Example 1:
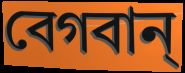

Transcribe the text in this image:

বেগবান্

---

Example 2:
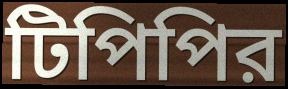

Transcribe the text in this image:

টিপিপির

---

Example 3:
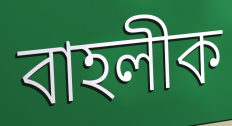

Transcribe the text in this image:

বাহলীক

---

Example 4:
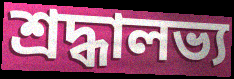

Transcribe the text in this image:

শ্রদ্ধালভ্য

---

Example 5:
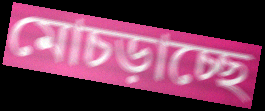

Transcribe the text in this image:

মোচড়াচ্ছে